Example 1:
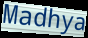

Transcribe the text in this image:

Madhya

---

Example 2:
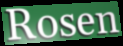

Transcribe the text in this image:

Rosen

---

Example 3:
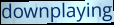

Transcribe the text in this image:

downplaying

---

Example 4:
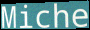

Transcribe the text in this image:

Miche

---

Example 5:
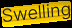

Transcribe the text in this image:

Swelling